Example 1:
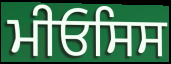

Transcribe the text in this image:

ਮੀਓਸਿਸ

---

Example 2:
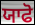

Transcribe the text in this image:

ਯਾਫੋ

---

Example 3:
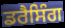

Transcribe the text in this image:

ਡਰੈਸਿੰਗ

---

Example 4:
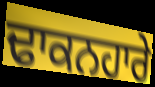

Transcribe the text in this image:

ਢਾਕਨਹਾਰੇ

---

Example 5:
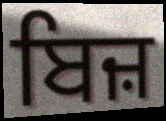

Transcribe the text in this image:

ਬਿਜ਼